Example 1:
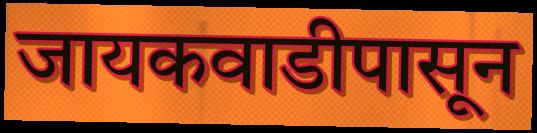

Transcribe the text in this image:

जायकवाडीपासून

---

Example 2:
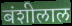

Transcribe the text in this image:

बंशीलाल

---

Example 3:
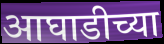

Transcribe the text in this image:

आघाडीच्‍या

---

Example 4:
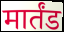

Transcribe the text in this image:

मार्तंड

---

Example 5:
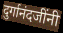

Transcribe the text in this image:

दुर्गानंदजींनी